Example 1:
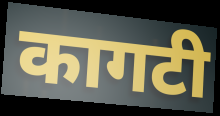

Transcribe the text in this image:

कागटी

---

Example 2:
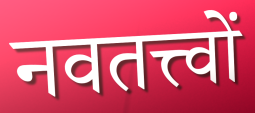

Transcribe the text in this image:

नवतत्त्वों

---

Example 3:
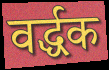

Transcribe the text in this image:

वर्द्धक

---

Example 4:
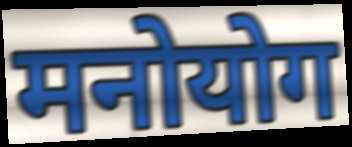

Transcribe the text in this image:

मनोयोग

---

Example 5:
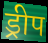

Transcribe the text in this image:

ड्रीप